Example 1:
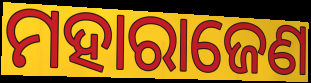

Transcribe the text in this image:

ମହାରାଜେଣ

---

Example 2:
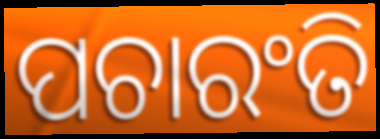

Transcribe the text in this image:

ପଚାରଂତି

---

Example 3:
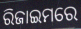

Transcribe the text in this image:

ରିଜାଇମରେ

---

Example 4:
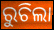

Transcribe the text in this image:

ରୁଚିଲା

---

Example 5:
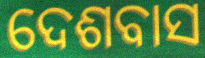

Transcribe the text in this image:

ଦେଶବାସ